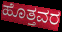
ಹೊತ್ತವರ